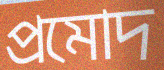
প্রমোদ